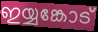
ഇയ്യങ്കോട്